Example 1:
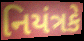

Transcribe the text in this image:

નિયંત્રકે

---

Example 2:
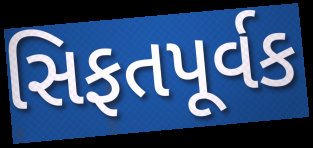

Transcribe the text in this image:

સિફતપૂર્વક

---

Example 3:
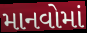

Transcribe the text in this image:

માનવોમાં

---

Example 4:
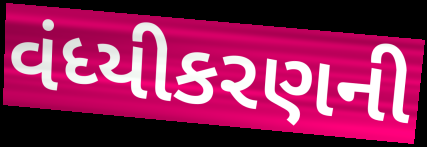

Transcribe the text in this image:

વંધ્યીકરણની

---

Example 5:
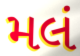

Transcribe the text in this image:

મલં